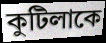
কুটিলাকে